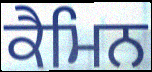
ਕੈਮਿਨ